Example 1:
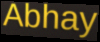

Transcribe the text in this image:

Abhay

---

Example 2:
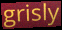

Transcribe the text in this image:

grisly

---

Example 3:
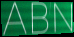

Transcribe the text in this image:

ABN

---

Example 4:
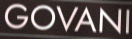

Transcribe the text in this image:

GOVANI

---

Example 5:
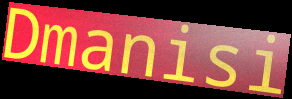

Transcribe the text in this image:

Dmanisi